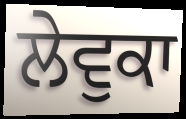
ਲੇਵੁਕਾ